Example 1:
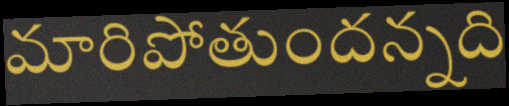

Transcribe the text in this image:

మారిపోతుందన్నది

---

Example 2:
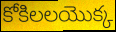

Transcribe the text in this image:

కోకిలలయొక్క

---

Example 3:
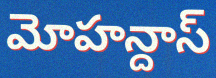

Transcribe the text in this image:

మోహన్దాస్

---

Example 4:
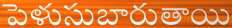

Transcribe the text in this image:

పెళుసుబారుతాయి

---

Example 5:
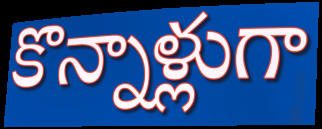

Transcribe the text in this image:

కొన్నాళ్లుగా